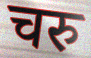
चरु